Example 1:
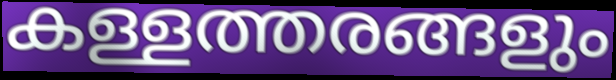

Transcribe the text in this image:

കള്ളത്തരങ്ങളും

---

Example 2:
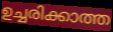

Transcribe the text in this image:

ഉച്ചരിക്കാത്ത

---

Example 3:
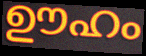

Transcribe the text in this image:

ഊഹം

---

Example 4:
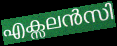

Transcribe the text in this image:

എക്സലൻസി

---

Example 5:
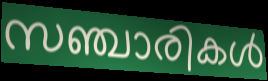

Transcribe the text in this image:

സഞ്ചാരികൾ